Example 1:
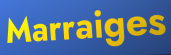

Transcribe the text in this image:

Marraiges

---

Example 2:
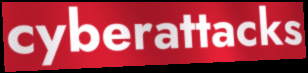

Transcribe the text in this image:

cyberattacks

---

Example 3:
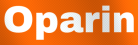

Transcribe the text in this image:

Oparin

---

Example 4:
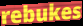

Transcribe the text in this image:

rebukes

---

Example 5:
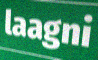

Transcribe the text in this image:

laagni